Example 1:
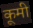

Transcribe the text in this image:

कूमी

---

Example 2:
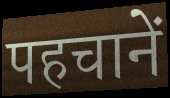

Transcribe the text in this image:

पहचानें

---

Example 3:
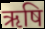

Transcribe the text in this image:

ऋषि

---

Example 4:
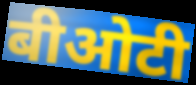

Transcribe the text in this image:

बीओटी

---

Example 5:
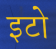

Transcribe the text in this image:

इटो